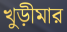
খুড়ীমার